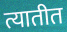
त्यातीत